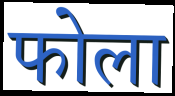
फोला